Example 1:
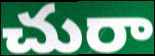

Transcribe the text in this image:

చురా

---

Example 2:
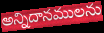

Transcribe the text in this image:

అన్నిదానములను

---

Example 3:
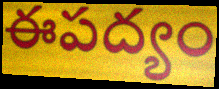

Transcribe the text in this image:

ఈపద్యం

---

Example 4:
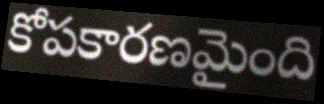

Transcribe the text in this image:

కోపకారణమైంది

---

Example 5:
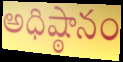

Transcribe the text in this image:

అధిష్ఠానం